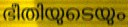
ഭീതിയുടെയും